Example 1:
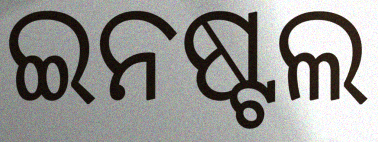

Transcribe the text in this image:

ଇନଷ୍ଟଲ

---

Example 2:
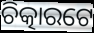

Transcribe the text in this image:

ଚିତ୍କାରଟେ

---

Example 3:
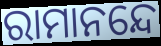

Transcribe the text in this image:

ରାମାନନ୍ଦେ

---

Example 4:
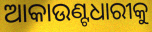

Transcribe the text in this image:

ଆକାଉଣ୍ଟଧାରୀକୁ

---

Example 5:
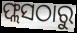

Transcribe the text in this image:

ଫ୍ଲସଠାରୁ